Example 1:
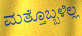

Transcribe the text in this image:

ಮತ್ತೊಬ್ಬಳಿಲ್ಲ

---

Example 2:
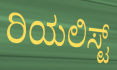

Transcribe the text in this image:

ರಿಯಲಿಸ್ಟ್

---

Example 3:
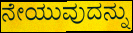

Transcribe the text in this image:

ನೇಯುವುದನ್ನು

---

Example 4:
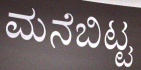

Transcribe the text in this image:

ಮನೆಬಿಟ್ಟ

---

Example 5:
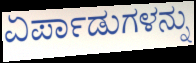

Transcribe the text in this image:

ಏರ್ಪಾಡುಗಳನ್ನು